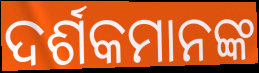
ଦର୍ଶକମାନଙ୍କ